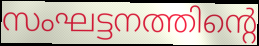
സംഘട്ടനത്തിന്റെ